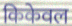
किकेवल